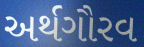
અર્થગૌરવ